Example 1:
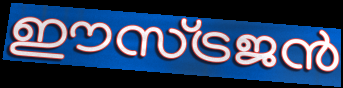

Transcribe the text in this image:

ഈസ്ട്രജൻ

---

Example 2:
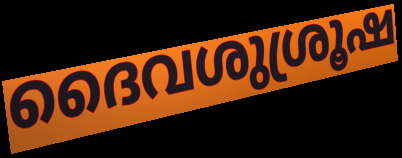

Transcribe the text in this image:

ദൈവശുശ്രൂഷ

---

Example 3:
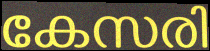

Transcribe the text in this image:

കേസരി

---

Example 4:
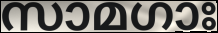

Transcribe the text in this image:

സാമഗാഃ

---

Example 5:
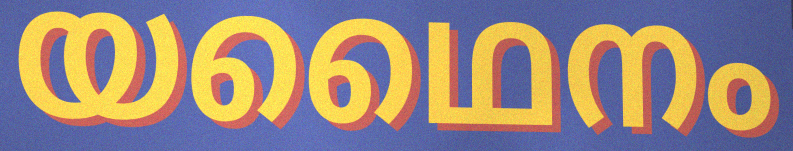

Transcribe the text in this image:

യഥൈനം